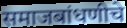
समाजबांधणीचे